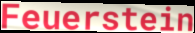
Feuerstein